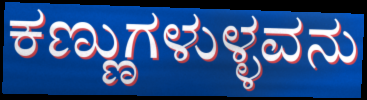
ಕಣ್ಣುಗಳುಳ್ಳವನು